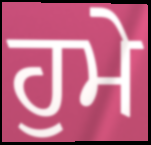
ਹੁਮੇ